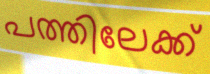
പത്തിലേക്ക്